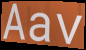
Aav